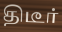
திடீர்